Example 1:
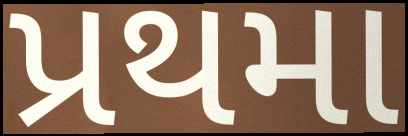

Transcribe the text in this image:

પ્રથમા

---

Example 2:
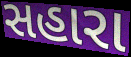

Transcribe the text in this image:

સહારા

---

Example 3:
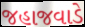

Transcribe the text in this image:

જહાજવાડે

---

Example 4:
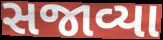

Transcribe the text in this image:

સજાવ્યા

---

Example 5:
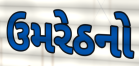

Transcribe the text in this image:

ઉમરેઠનો